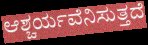
ಆಶ್ಚರ್ಯವೆನಿಸುತ್ತದೆ